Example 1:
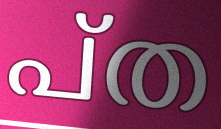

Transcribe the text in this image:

പ്‌ത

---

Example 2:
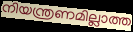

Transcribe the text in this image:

നിയന്ത്രണമില്ലാത്ത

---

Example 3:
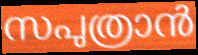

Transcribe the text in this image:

സപുത്രാൻ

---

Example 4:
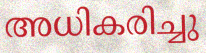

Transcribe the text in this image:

അധികരിച്ചു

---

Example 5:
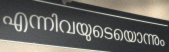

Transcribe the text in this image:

എന്നിവയുടെയൊന്നും